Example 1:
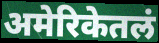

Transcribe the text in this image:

अमेरिकेतलं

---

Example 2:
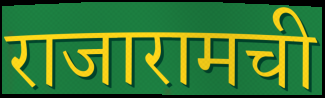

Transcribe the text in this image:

राजारामची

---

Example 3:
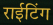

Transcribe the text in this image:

राईटिंग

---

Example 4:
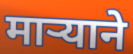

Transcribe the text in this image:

मार्‍याने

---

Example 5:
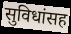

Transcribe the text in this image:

सुविधांसह